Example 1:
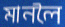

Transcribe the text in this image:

মানলৈ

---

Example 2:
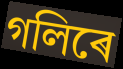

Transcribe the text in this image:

গলিৰে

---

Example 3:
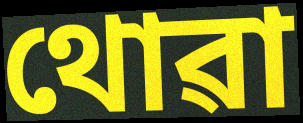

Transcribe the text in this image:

থোৱা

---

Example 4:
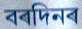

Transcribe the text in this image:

বৰদিনৰ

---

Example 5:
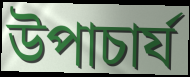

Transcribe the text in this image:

উপাচাৰ্য